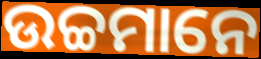
ଉଚ୍ଚମାନେ